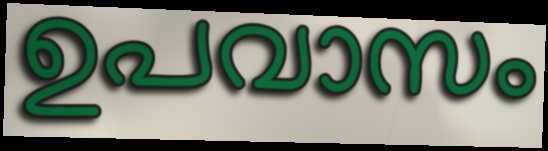
ഉപവാസം